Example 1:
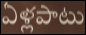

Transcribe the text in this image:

ఏళ్లపాటు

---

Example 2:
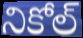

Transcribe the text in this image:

నికోల్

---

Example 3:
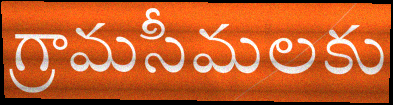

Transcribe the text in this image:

గ్రామసీమలకు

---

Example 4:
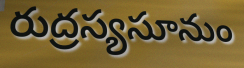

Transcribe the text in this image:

రుద్రస్యసూనుం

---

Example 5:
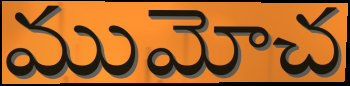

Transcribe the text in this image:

ముమోచ